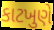
કાટખુણે